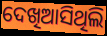
ଦେଖିଆସିଥିଲି